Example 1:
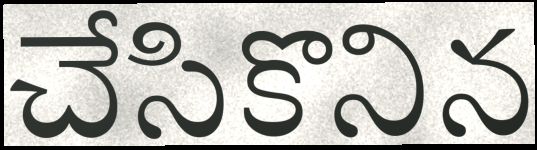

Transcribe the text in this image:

చేసికొనిన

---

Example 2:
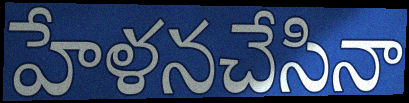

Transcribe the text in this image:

హేళనచేసినా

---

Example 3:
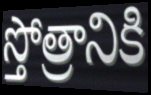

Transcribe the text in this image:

స్తోత్రానికి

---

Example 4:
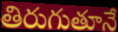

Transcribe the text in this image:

తిరుగుతూనే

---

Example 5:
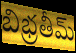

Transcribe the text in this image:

బిభ్రతీమ్